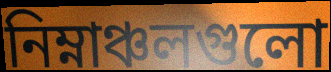
নিম্নাঞ্চলগুলো